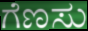
ಗೆಣಸು